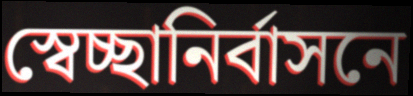
স্বেচ্ছানির্বাসনে